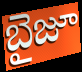
బైజూ